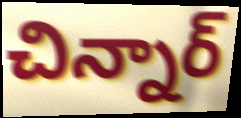
చిన్నార్